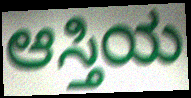
ಆಸ್ತಿಯ